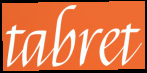
tabret